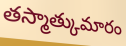
తస్మాత్కుమారం